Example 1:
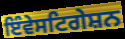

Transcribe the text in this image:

ਇੰਵੇਸਟਿਗੇਸ਼ਨ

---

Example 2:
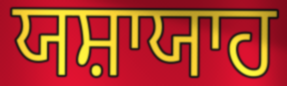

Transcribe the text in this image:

ਯਸ਼ਾਯਾਹ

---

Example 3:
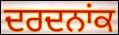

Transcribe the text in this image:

ਦਰਦਨਾਂਕ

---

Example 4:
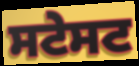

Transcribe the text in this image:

ਸਟੇਸਟ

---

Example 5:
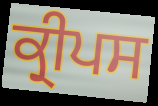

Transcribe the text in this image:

ਕ੍ਰੀਪਸ